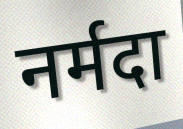
नर्मदा